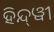
ହିନ୍ଦ୍‍ୱୀ